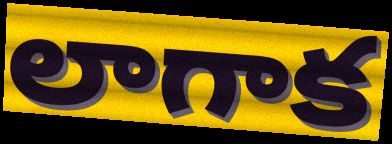
లాగాక